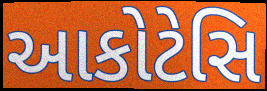
આકોટેસિ